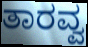
ತಾರವ್ವ